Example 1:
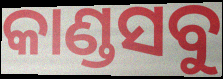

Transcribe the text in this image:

କାଣ୍ଡସବୁ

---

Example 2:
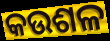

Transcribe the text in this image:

କଉଶଳ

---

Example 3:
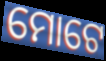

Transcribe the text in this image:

ମୋଟେ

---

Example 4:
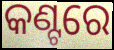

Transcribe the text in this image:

କଣ୍ଟରେ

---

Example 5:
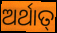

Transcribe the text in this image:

ଅର୍ଥାତ୍